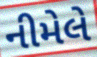
નીમેલે